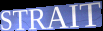
STRAIT